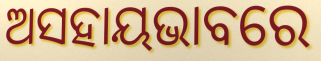
ଅସହାୟଭାବରେ